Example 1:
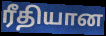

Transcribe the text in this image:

ரீதியான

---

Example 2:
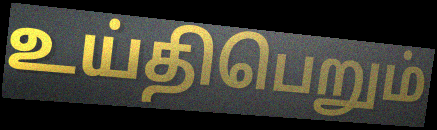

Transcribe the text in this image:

உய்திபெறும்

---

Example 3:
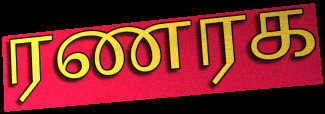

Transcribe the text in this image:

ரணரக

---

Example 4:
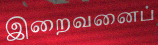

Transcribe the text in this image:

இறைவனைப்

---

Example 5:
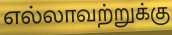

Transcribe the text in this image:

எல்லாவற்றுக்கு